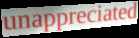
unappreciated